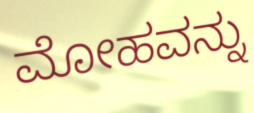
ಮೋಹವನ್ನು